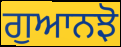
ਗੁਆਨਝੋ